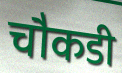
चौकडी